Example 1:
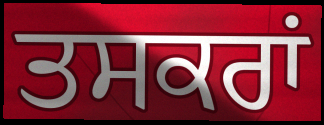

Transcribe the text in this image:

ਤਸਕਰਾਂ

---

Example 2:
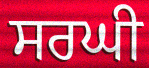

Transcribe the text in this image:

ਸਰਘੀ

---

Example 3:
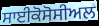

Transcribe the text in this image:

ਸਾਈਕੋਸੋਸੀਅਲ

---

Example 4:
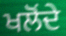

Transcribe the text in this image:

ਖਲੋਂਦੇ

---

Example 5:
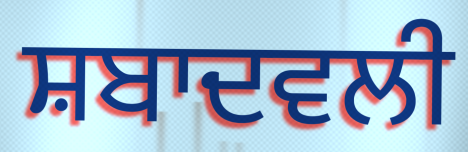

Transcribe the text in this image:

ਸ਼ਬਾਦਵਲੀ